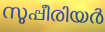
സുപ്പീരിയർ